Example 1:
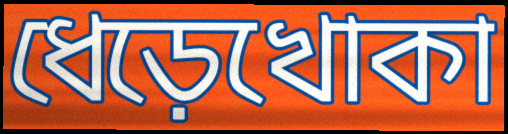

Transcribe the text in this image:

ধেড়েখোকা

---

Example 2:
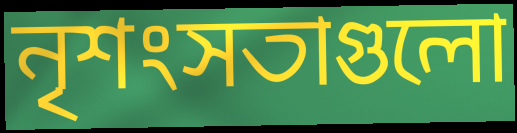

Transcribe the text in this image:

নৃশংসতাগুলো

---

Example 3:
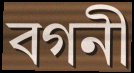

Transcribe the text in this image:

বগনী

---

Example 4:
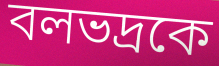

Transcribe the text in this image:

বলভদ্রকে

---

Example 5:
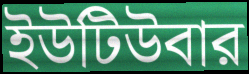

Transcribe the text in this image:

ইউটিউবার